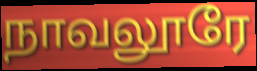
நாவலூரே